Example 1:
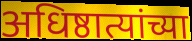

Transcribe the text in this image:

अधिष्ठात्यांच्या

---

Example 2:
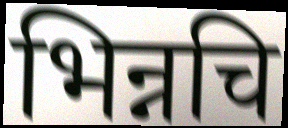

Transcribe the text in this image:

भिन्नचि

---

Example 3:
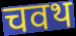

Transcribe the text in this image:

चवथ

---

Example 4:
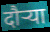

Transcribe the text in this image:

दौऱ्या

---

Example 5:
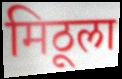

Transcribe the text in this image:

मिठूला